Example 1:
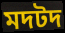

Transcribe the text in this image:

মদটদ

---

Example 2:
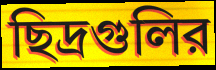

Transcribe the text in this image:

ছিদ্রগুলির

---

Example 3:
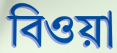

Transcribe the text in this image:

বিওয়া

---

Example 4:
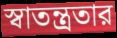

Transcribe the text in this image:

স্বাতন্ত্রতার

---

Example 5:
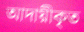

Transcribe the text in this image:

আদায়ীকৃত